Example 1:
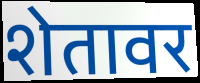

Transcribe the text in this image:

शेतावर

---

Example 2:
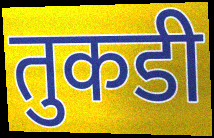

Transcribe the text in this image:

तुकडी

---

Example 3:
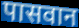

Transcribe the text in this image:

पासवान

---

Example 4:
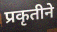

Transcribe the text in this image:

प्रकृतीने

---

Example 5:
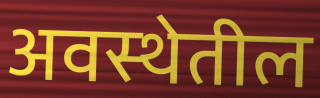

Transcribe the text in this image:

अवस्थेतील